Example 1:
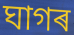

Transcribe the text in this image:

ঘাগৰ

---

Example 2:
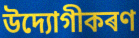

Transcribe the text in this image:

উদ্যোগীকৰণ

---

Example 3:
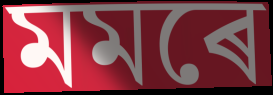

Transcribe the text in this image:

মমৰে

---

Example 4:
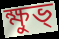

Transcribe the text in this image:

ক্ষুভ্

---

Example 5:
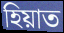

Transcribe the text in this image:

হিয়াত